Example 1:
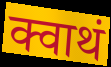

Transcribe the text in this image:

क्वाथं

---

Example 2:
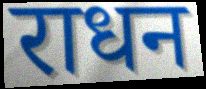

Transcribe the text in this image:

राधन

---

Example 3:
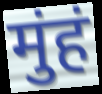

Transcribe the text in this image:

मुंहं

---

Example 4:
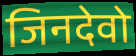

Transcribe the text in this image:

जिनदेवो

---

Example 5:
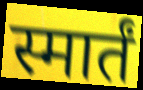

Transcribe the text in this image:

स्मार्तं